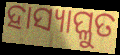
ହାସ୍ୟାପ୍ଳୁତ